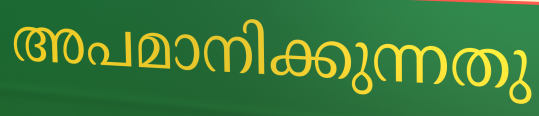
അപമാനിക്കുന്നതു